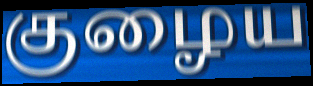
குழைய